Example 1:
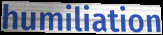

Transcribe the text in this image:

humiliation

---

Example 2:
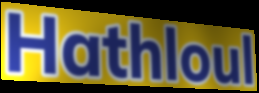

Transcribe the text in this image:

Hathloul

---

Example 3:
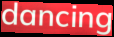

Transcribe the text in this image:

dancing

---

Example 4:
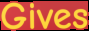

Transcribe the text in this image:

Gives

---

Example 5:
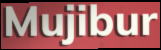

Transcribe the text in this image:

Mujibur